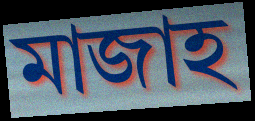
মাজাহ